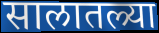
सालातल्या